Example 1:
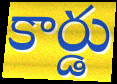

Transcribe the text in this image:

కార్డు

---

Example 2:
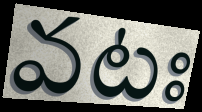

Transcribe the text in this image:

వటః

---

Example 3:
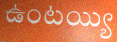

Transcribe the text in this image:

ఉంటయ్యి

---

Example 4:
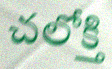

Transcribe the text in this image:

చలోక్తి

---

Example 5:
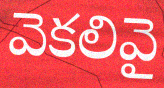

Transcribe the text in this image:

వెకలివై